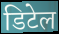
डिटेल